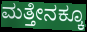
ಮತ್ತೇನಕ್ಕೂ